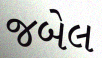
જબેલ